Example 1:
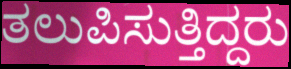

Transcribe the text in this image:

ತಲುಪಿಸುತ್ತಿದ್ದರು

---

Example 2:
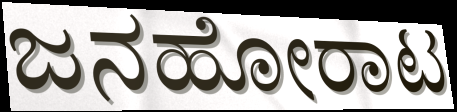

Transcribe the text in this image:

ಜನಹೋರಾಟ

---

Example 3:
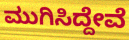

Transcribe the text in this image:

ಮುಗಿಸಿದ್ದೇವೆ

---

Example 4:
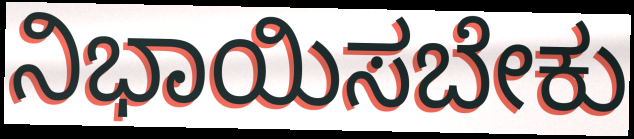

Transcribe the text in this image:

ನಿಭಾಯಿಸಬೇಕು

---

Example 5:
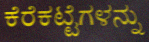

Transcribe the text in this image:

ಕೆರೆಕಟ್ಟೆಗಳನ್ನು